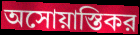
অসোয়াস্তিকর